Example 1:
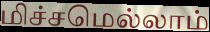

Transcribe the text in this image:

மிச்சமெல்லாம்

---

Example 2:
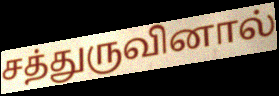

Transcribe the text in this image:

சத்துருவினால்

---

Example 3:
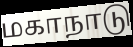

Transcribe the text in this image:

மகாநாடு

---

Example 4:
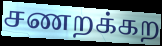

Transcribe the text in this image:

சணறக்கற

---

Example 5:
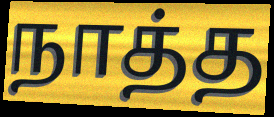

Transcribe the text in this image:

நாத்த